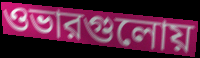
ওভারগুলোয়